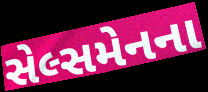
સેલ્સમેનના